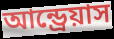
আন্ড্রেয়াস